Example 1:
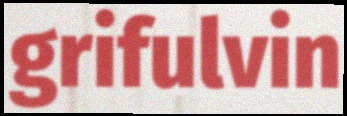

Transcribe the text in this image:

grifulvin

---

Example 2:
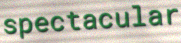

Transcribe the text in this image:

spectacular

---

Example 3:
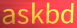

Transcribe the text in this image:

askbd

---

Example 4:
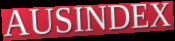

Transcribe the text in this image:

AUSINDEX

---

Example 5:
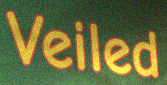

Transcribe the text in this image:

Veiled